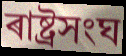
ৰাষ্ট্ৰসংঘ